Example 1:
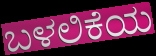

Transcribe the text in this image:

ಬಳಲಿಕೆಯ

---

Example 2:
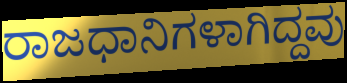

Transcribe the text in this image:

ರಾಜಧಾನಿಗಳಾಗಿದ್ದವು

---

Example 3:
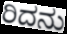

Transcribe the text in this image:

ರಿದನು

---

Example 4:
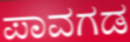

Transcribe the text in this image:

ಪಾವಗಡ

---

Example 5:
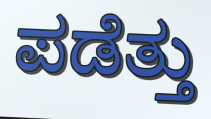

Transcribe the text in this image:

ಪಡೆತ್ತು